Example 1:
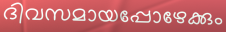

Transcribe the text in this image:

ദിവസമായപ്പോഴേക്കും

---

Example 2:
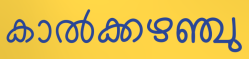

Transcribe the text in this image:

കാൽക്കഴഞ്ചു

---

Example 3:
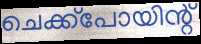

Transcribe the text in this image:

ചെക്ക്പോയിന്റ്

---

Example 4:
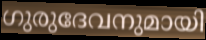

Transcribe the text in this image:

ഗുരുദേവനുമായി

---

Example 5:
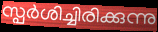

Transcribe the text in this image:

സ്പർശിച്ചിരിക്കുന്നു